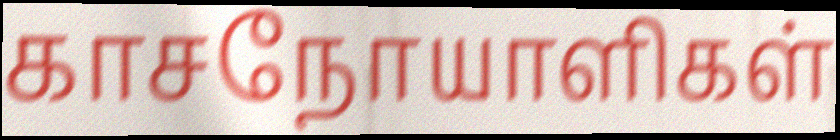
காசநோயாளிகள்